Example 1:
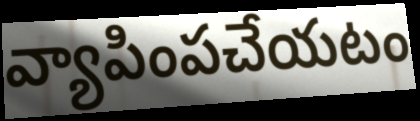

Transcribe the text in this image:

వ్యాపింపచేయటం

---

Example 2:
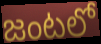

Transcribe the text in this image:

జంటలో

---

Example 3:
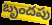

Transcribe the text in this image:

బృందపు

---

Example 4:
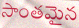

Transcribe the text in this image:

సాంతమైన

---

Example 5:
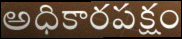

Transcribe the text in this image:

అధికారపక్షం